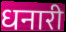
धनारी